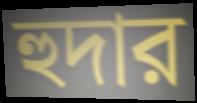
হুদার